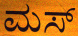
ಮಸ್